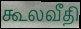
கூலவீதி